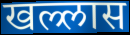
खल्लास